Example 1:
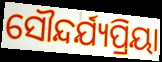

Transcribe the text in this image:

ସୌନ୍ଦର୍ଯ୍ୟପ୍ରିୟା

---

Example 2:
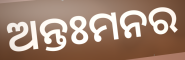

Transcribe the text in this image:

ଅନ୍ତଃମନର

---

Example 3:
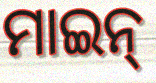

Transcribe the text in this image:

ମାଇନ୍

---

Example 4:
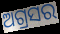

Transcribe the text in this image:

ଅଗ୍ରସର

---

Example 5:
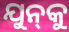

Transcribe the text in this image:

ଯୁନ୍‍କୁ